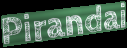
Pirandai